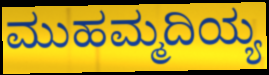
ಮುಹಮ್ಮದಿಯ್ಯ